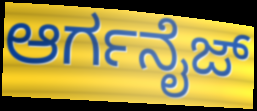
ಆರ್ಗನೈಜ್